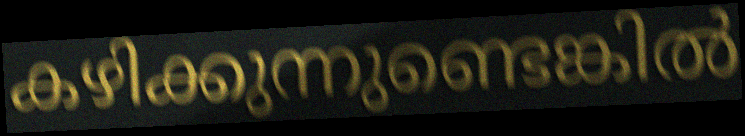
കഴിക്കുന്നുണ്ടെങ്കിൽ